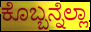
ಕೊಬ್ಬನ್ನೆಲ್ಲಾ